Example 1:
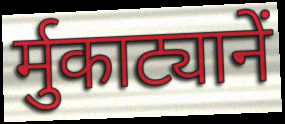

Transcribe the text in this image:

र्मुकाट्यानें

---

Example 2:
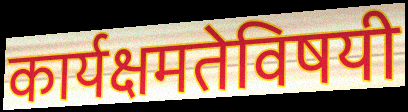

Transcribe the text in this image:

कार्यक्षमतेविषयी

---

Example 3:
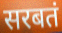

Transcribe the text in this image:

सरबतं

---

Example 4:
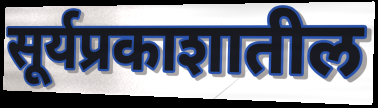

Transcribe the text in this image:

सूर्यप्रकाशातील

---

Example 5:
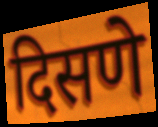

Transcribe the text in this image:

दिसणे